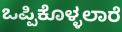
ಒಪ್ಪಿಕೊಳ್ಳಲಾರೆ